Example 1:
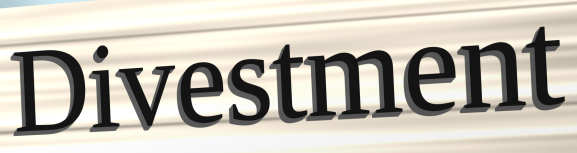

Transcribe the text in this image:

Divestment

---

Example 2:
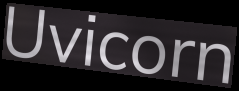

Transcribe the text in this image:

Uvicorn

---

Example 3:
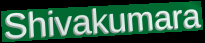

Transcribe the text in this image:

Shivakumara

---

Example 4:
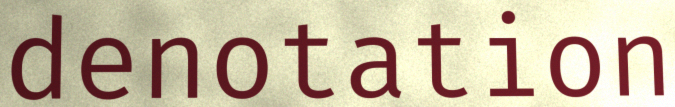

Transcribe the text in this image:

denotation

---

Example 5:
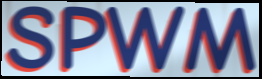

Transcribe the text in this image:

SPWM